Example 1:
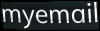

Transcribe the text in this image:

myemail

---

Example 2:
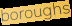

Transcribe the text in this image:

boroughs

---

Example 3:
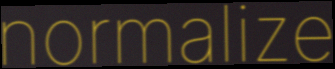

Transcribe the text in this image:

normalize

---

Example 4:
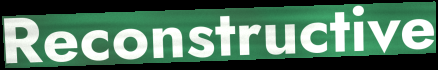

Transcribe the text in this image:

Reconstructive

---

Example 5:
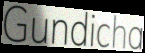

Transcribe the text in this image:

Gundicha